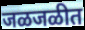
जळजळीत